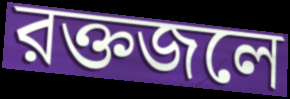
রক্তজলে